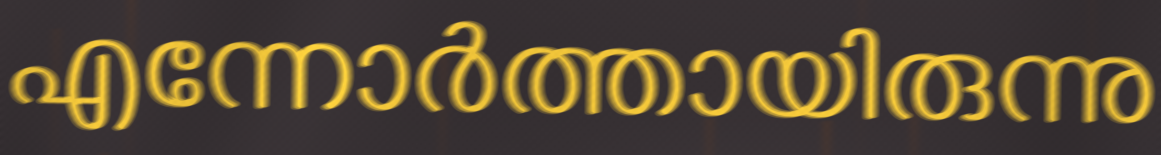
എന്നോർത്തായിരുന്നു